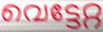
വെട്ടേറ്റ